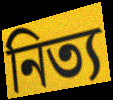
নিত্য